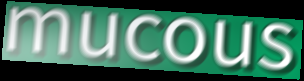
mucous